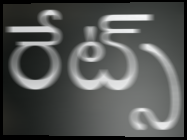
రేట్స్